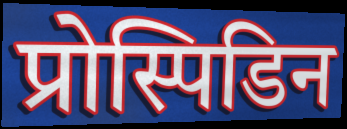
प्रोस्पिडिन